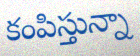
కంపిస్తున్నా